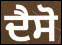
ਦੈਸੋ